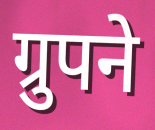
ग्रुपने